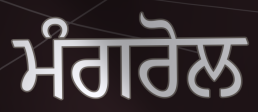
ਮੰਗਰੋਲ